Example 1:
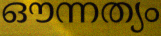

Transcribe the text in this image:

ഔന്നത്യം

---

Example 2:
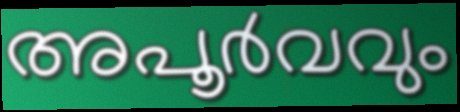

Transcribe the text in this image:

അപൂർവവും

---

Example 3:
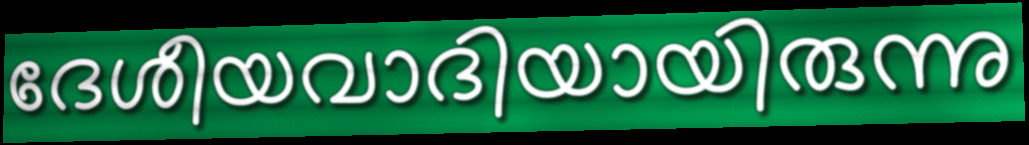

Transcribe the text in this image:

ദേശീയവാദിയായിരുന്നു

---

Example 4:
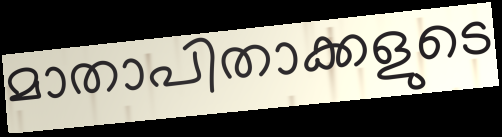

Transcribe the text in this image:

മാതാപിതാക്കളുടെ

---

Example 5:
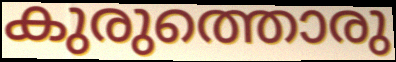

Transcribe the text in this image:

കുരുത്തൊരു